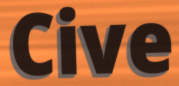
Cive